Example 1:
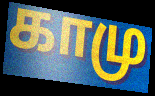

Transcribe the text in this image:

காமு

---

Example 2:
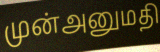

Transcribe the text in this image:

முன்அனுமதி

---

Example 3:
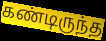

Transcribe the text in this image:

கண்டிருந்த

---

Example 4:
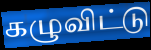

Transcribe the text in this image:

கழுவிட்டு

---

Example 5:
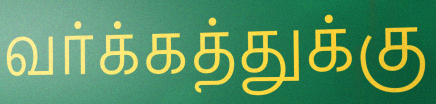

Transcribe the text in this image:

வர்க்கத்துக்கு